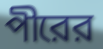
পীরের